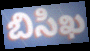
బిసిఖ